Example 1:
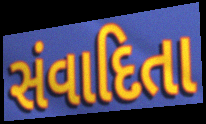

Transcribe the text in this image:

સંવાદિતા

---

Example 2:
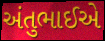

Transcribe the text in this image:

અંતુભાઈએ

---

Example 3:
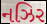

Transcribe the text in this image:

નઝિર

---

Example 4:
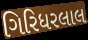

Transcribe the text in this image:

ગિરિધરલાલ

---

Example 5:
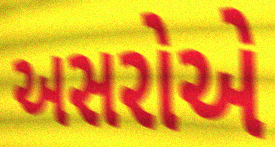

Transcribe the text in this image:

અસરોએ